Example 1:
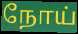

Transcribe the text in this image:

நோய்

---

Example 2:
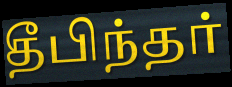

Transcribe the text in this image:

தீபிந்தர்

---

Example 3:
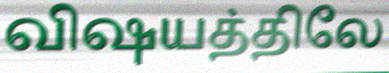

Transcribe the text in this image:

விஷயத்திலே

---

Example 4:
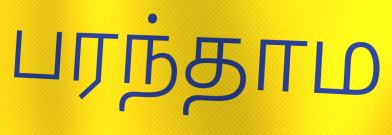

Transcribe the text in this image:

பரந்தாம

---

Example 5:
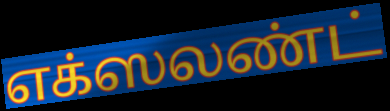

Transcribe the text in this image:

எக்ஸலண்ட்